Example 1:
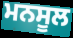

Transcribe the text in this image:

ਮਨਸੂਲ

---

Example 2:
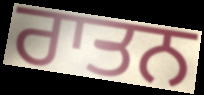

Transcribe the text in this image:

ਰਾਤਨ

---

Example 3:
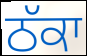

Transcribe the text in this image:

ਠੱਕਾ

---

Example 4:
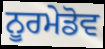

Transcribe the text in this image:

ਨੂਰਮੇਡੋਵ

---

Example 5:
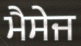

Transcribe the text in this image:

ਮੈਸੇਜ